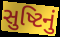
સુષ્ટિનું